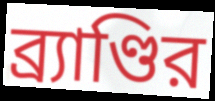
ব্র্যাণ্ডির